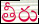
తీరు